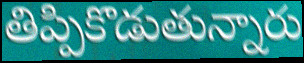
తిప్పికొడుతున్నారు